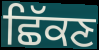
ਛਿੱਕਣ